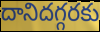
దానిదగ్గరకు